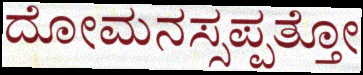
ದೋಮನಸ್ಸಪ್ಪತ್ತೋ